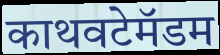
काथवटेमॅडम